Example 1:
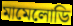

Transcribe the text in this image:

মামেলোডি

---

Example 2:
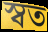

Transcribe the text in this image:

স্বত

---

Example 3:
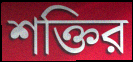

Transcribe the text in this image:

শক্তির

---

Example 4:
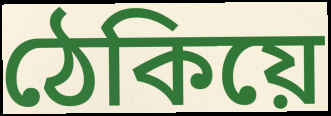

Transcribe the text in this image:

ঠেকিয়ে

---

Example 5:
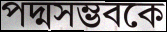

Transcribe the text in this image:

পদ্মসম্ভবকে